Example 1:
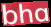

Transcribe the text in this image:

bha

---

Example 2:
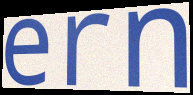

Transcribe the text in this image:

ern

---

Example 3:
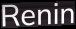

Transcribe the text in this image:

Renin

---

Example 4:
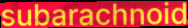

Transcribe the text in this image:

subarachnoid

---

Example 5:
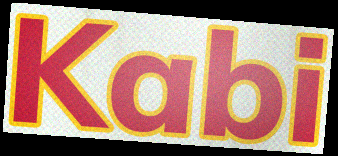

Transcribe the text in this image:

Kabi